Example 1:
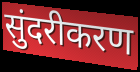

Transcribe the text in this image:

सुंदरीकरण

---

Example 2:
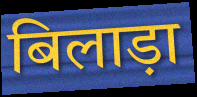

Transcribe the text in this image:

बिलाड़ा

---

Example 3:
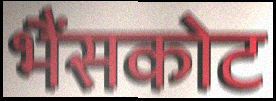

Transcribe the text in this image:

भैंसकोट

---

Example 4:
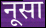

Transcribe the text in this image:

नूसा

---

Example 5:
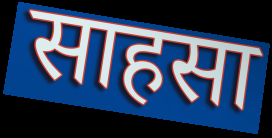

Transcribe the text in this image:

साहसा